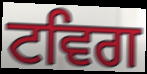
ਟਵਿਗ